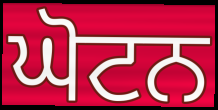
ਘੋਟਨ